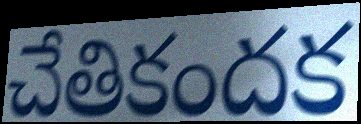
చేతికందక